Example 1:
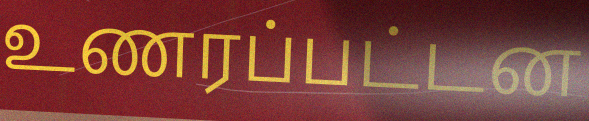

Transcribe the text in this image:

உணரப்பட்டன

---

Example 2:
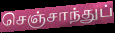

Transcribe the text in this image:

செஞ்சாந்துப்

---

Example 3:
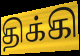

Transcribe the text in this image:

திக்கி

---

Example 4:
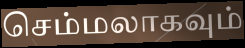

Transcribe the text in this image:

செம்மலாகவும்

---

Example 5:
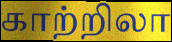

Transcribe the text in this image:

காற்றிலா